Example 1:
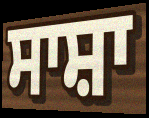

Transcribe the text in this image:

ਸਾਸ਼ਾ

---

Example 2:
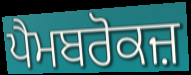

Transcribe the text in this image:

ਪੈਮਬਰੋਕਜ਼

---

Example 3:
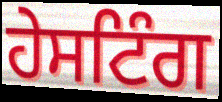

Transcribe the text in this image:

ਹੇਸਟਿੰਗ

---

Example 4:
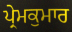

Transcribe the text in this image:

ਪ੍ਰੇਮਕੁਮਾਰ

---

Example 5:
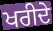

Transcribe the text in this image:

ਖਰੀਦੇ